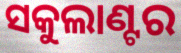
ସକୁଲାଣ୍ଟର